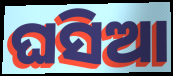
ଘସିଆ